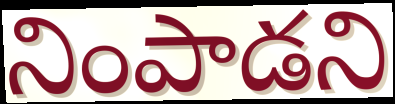
నింపాడని